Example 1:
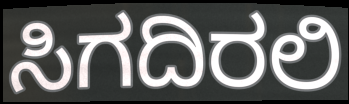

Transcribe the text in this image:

ಸಿಗದಿರಲಿ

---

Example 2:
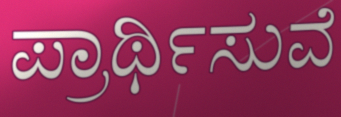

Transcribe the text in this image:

ಪ್ರಾರ್ಥಿಸುವೆ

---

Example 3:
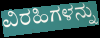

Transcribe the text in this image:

ವಿರಹಿಗಳನ್ನು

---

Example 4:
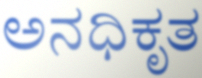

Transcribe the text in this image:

ಅನಧಿಕೃತ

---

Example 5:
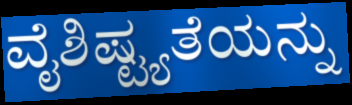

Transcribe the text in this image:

ವೈಶಿಷ್ಟ್ಯತೆಯನ್ನು